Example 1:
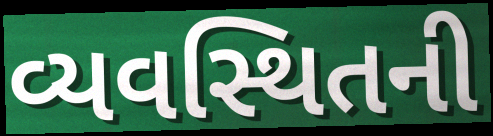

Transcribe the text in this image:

વ્યવસ્થિતની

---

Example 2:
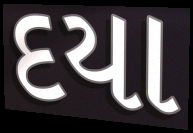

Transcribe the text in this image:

દયા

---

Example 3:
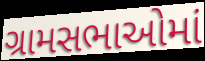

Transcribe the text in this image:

ગ્રામસભાઓમાં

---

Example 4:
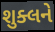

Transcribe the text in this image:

શુક્લને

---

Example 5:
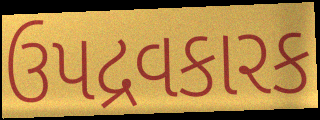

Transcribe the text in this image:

ઉપદ્રવકારક